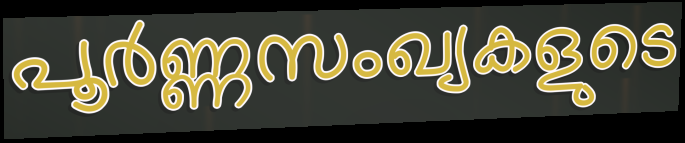
പൂർണ്ണസംഖ്യകളുടെ